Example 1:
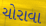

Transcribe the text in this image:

ચોરાવા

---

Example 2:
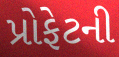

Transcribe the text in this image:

પ્રોફેટની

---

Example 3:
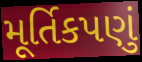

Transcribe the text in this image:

મૂર્તિકપણું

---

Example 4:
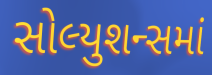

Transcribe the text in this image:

સોલ્યુશન્સમાં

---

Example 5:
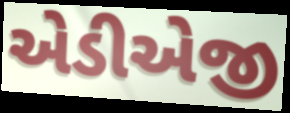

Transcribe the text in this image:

એડીએજી